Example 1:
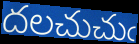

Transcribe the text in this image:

దలచుచుఁ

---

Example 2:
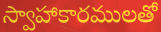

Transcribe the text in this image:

స్వాహాకారములతో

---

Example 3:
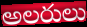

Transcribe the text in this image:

అలరులు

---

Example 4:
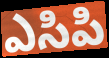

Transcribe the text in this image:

ఎసిపి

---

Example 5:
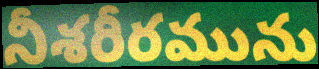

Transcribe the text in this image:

నీశరీరమును